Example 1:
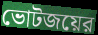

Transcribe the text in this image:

ভোটজয়ের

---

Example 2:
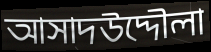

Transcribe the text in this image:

আসাদউদ্দৌলা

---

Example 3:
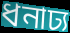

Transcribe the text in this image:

ধনাঢ্য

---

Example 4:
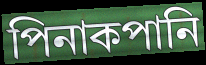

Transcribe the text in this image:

পিনাকপানি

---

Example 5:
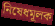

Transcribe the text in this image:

নিষেধমূলক